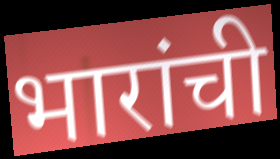
भारांची